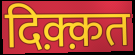
दिक़्क़त